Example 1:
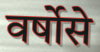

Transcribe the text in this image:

वर्षोसे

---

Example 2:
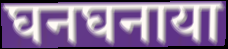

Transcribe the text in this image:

घनघनाया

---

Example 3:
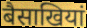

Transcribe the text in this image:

बैसाखियां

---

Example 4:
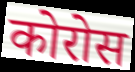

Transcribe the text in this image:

कोरोस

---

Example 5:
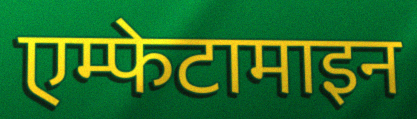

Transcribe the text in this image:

एम्फेटामाइन